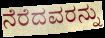
ನೆರೆದವರನ್ನು